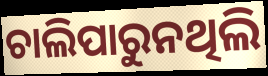
ଚାଲିପାରୁନଥିଲି